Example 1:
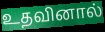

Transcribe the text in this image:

உதவினால்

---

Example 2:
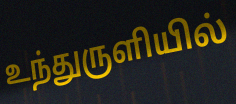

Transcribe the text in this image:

உந்துருளியில்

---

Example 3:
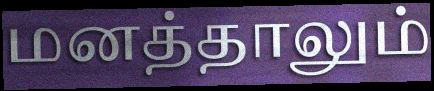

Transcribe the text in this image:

மனத்தாலும்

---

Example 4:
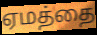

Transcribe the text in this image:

ஏமத்தை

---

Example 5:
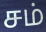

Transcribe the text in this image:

சம்